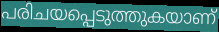
പരിചയപ്പെടുത്തുകയാണ്